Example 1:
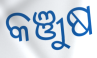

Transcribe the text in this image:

କଞ୍ଜୁଷ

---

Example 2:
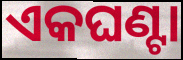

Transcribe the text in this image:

ଏକଘଣ୍ଟା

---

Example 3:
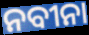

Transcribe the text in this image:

ନବୀନା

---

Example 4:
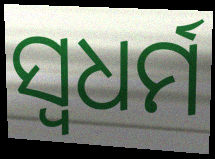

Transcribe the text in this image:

ସ୍ଵଧର୍ମ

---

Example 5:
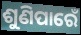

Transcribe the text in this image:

ଶୁଣିପାରେଁ